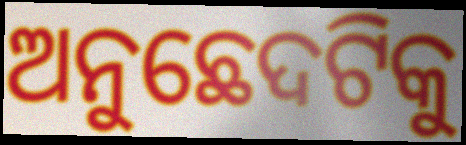
ଅନୁଛେଦଟିକୁ